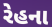
રેહના